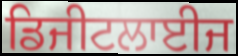
ਡਿਜੀਟਲਾਈਜ